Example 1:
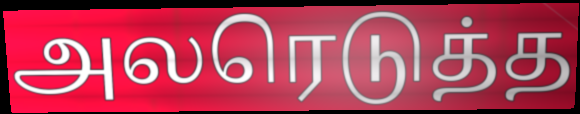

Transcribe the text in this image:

அலரெடுத்த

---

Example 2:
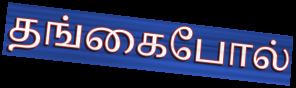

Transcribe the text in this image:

தங்கைபோல்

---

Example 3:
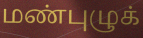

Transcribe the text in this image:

மண்புழுக்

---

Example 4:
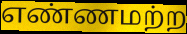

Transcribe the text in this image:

எண்ணமற்ற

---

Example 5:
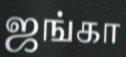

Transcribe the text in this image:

ஜங்கா